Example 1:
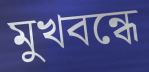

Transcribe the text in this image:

মুখবন্ধে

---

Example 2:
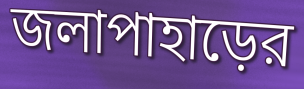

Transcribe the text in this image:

জলাপাহাড়ের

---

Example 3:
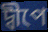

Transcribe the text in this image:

দ্বীপে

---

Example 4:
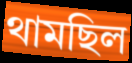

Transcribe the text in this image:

থামছিল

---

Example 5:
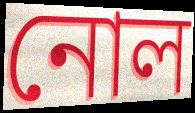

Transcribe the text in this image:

নোল